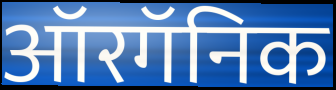
ऑरगॅनिक